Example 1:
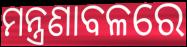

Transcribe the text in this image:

ମନ୍ତ୍ରଣାବଳରେ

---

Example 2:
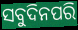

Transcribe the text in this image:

ସବୁଦିନପରି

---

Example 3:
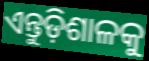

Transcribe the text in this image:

ଏନ୍ତୁଡ଼ିଶାଳକୁ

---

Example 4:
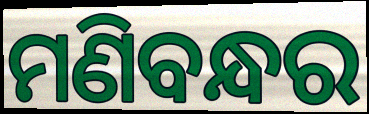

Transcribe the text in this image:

ମଣିବନ୍ଧର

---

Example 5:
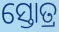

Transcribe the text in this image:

ସ୍ତୋତ୍ର